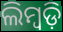
ଲିମ୍ବଡ଼ି